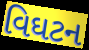
વિઘટન